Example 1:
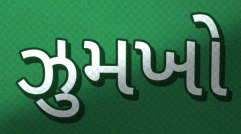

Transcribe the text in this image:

ઝુમખો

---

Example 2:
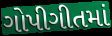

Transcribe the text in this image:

ગોપીગીતમાં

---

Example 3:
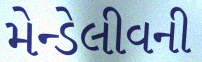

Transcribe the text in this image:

મેન્ડેલીવની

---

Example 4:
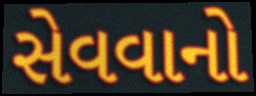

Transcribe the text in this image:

સેવવાનો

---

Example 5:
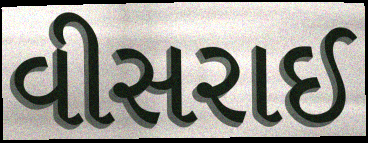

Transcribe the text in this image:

વીસરાઈ